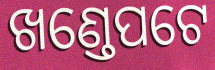
ଖଣ୍ଡେପଟେ